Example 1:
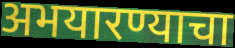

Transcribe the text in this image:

अभयारण्याचा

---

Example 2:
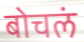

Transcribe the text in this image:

बोचलं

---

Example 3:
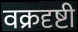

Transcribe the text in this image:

वक्रदृष्टी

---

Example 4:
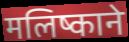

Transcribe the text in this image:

मलिष्काने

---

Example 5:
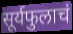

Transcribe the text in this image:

सूर्यफुलाचं